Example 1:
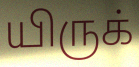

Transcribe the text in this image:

யிருக்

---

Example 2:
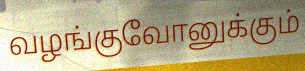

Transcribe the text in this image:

வழங்குவோனுக்கும்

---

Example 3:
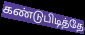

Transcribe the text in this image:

கண்டுபிடித்தே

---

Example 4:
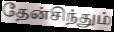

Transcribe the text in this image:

தேன்சிந்தும்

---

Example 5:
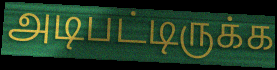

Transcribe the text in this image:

அடிபட்டிருக்க